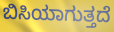
ಬಿಸಿಯಾಗುತ್ತದೆ